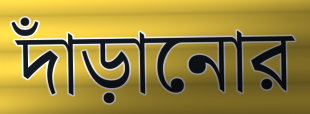
দাঁড়ানোর